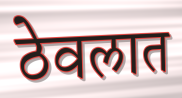
ठेवलात